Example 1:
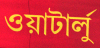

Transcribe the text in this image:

ওয়াটার্লু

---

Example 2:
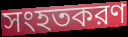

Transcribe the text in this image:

সংহতকরণ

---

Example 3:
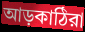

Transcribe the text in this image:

আড়কাঠিরা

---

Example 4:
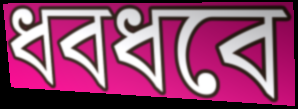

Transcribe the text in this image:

ধবধবে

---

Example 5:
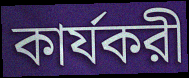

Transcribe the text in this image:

কার্যকরী